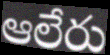
ఆలేరు